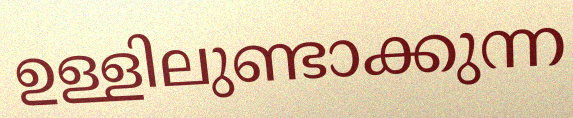
ഉള്ളിലുണ്ടാക്കുന്ന